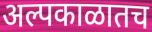
अल्पकाळातच